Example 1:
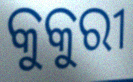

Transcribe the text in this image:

କୁକୁରୀ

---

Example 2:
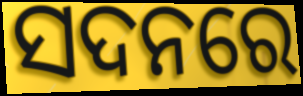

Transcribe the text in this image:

ସଦନରେ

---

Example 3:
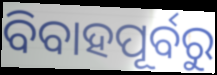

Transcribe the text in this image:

ବିବାହପୂର୍ବରୁ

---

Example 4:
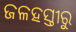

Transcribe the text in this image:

ଜଳହସ୍ତୀରୁ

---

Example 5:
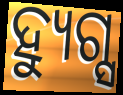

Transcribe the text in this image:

ହ୍ୟୁଗ୍ସ